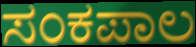
ಸಂಕಪಾಲ